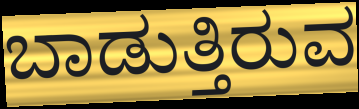
ಬಾಡುತ್ತಿರುವ